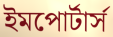
ইমপোর্টার্স